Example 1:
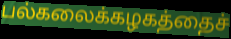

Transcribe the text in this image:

பல்கலைக்கழகத்தைச்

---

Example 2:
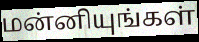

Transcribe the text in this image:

மன்னியுங்கள்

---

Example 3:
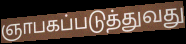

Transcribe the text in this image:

ஞாபகப்படுத்துவது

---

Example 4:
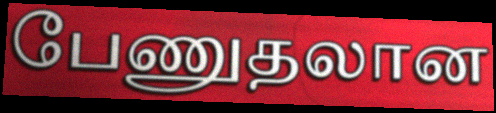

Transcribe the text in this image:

பேணுதலான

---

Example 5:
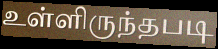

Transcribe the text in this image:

உள்ளிருந்தபடி